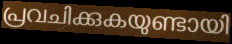
പ്രവചിക്കുകയുണ്ടായി